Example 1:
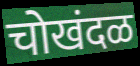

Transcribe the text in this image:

चोखंदळ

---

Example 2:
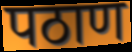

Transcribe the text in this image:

पठाण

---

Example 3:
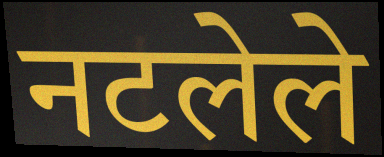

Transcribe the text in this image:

नटलेले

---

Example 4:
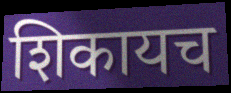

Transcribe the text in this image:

शिकायच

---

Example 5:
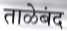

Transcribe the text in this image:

ताळेबंद